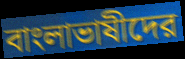
বাংলাভাষীদের